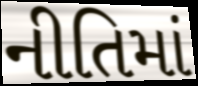
નીતિમાં